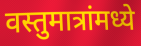
वस्तुमात्रांमध्ये